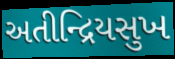
અતીન્દ્રિયસુખ